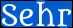
Sehr